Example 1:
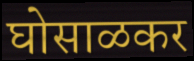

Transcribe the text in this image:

घोसाळकर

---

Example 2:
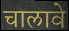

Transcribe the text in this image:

चालावे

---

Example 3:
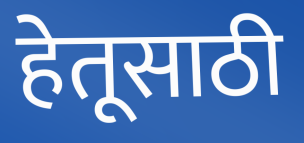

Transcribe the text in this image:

हेतूसाठी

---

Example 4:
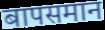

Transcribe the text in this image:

बापसमान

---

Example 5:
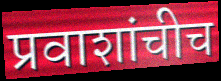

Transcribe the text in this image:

प्रवाशांचीच